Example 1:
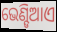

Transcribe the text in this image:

ଭେଣ୍ଡିଆଏ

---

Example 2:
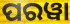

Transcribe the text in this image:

ପରୱା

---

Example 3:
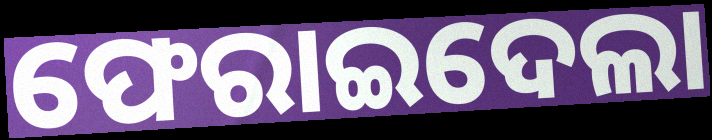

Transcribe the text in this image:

ଫେରାଇଦେଲା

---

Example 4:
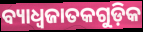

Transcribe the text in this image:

ବ୍ୟାଧ୍ଵଜାତକଗୁଡ଼ିକ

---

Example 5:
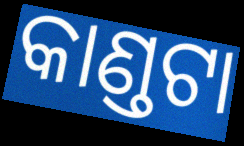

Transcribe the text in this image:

କାଣ୍ଡଟା